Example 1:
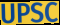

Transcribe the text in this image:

UPSC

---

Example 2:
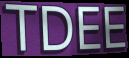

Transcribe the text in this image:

TDEE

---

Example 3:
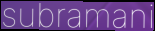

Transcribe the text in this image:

subramani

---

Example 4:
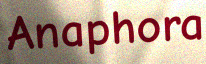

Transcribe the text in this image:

Anaphora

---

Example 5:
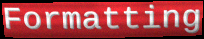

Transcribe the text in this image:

Formatting